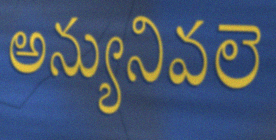
అన్యునివలె